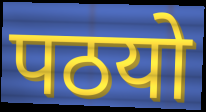
पठयो